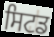
ਸਿਟਡ